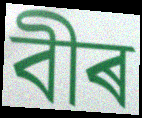
বীৰ